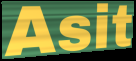
Asit